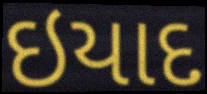
ઇયાદ